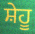
ਸ਼ੇਹੂ